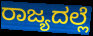
ರಾಜ್ಯದಲ್ಲೆ